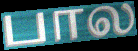
பால